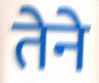
तेने